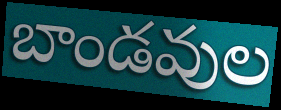
బాండవుల